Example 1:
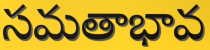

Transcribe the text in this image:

సమతాభావ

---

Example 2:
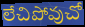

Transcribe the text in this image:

లేచిపోవుచో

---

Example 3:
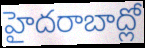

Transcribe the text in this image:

హైదరాబాద్లో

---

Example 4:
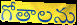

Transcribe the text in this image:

గోతాలను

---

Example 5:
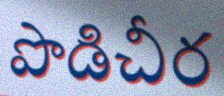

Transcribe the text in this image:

పొడిచీర